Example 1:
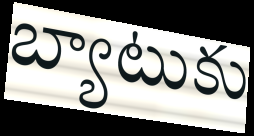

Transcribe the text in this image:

బ్యాటుకు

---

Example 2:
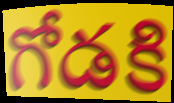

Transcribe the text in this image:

గోడకి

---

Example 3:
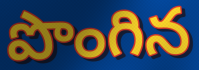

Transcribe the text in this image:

పొంగిన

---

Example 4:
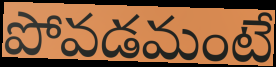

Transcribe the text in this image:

పోవడమంటే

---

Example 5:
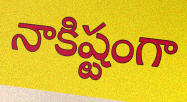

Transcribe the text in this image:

నాకిష్టంగా